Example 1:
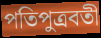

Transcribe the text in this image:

পতিপুত্রবতী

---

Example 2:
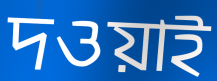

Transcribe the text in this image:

দওয়াই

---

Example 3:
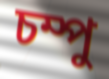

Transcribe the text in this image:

চম্পু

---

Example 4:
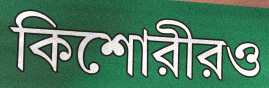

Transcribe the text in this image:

কিশোরীরও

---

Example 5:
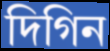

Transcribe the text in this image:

দিগিন